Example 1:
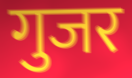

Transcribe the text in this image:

गुजर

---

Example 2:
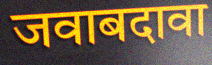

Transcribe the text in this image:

जवाबदावा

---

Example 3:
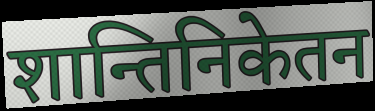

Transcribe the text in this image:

शान्तिनिकेतन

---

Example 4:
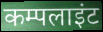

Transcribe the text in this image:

कम्पलाइंट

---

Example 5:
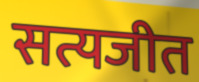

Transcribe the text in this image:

सत्यजीत